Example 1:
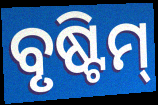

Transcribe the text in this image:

ବୃଷ୍ଟିମ୍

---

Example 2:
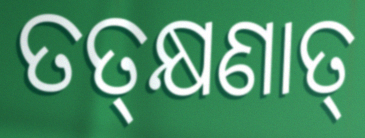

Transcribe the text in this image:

ତତ୍କ୍ଷଣାତ୍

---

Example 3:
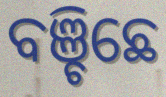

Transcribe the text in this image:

ବଞ୍ଚିଛେ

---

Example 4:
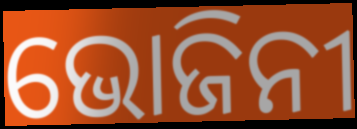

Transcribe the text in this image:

ଭୋଜିନୀ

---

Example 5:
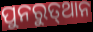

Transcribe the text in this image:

ପୁନରୁତ୍‌ଥାନ